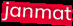
janmat